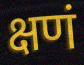
क्षणं